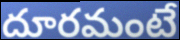
దూరమంటే